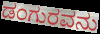
ಡಂಗುರವನು